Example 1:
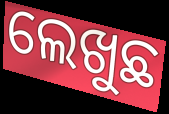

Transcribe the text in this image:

ଲେଖୁଛ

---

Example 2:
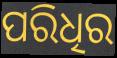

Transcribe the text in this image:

ପରିଧିର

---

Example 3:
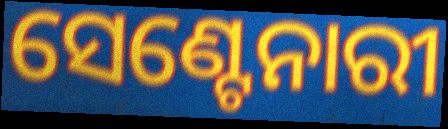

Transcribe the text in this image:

ସେଣ୍ଟେନାରୀ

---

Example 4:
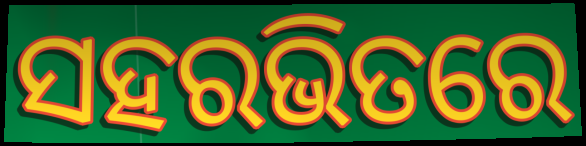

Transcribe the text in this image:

ସହରଭିତରେ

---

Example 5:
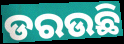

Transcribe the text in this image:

ଡରଉଛି